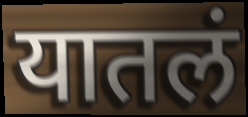
यातलं